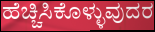
ಹೆಚ್ಚಿಸಿಕೊಳ್ಳುವುದರ